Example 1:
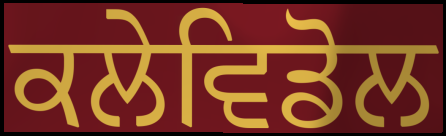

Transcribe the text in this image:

ਕਲੇਵਿਡੋਲ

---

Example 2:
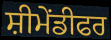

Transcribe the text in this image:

ਸ਼ੀਮੇਂਡੀਫਰ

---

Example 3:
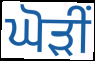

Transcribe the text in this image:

ਘੋੜੀਂ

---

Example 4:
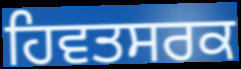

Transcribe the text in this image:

ਹਿਵਤਸਰਕ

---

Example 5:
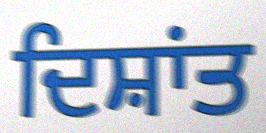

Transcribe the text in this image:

ਦਿਸ਼ਾਂਤ